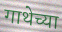
गाथेच्या